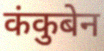
कंकुबेन